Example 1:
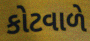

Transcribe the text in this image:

કોટવાળે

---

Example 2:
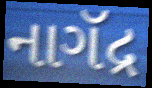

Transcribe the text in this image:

નાગૅદ્ર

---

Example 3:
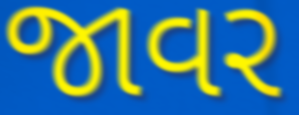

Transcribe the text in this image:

જાવર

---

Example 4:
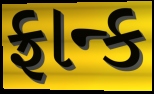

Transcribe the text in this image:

ફ્રાન્ક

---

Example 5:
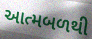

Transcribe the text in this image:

આત્મબળથી